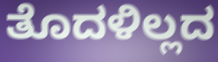
ತೊದಳಿಲ್ಲದ